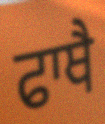
ਫਾਥੈ